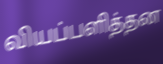
வியப்பளித்தன